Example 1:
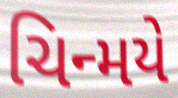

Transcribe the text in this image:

ચિન્મયે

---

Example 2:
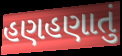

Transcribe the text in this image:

હણહણાતું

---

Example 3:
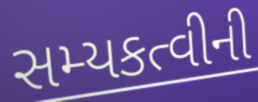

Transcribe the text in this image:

સમ્યકત્વીની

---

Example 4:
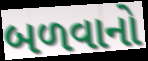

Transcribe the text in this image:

બળવાનો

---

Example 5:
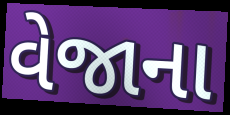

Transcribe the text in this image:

વેજાના